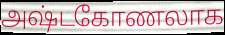
அஷ்டகோணலாக